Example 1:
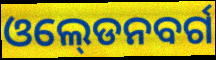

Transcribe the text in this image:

ଓଲ୍‍ଡେନବର୍ଗ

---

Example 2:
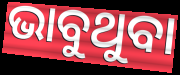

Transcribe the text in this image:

ଭାବୁଥୁବା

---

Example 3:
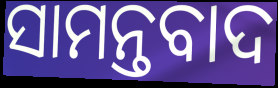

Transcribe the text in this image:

ସାମନ୍ତବାଦ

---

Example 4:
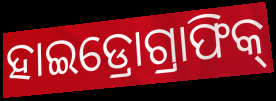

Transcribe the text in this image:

ହାଇଡ୍ରୋଗ୍ରାଫିକ୍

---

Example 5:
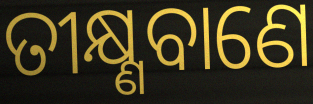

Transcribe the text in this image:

ତୀକ୍ଷ୍ଣବାଣେ